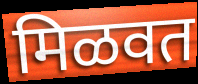
मिळवत